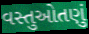
વસ્તુઓતણું